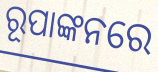
ରୂପାଙ୍କନରେ